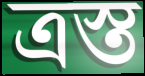
ত্রস্ত